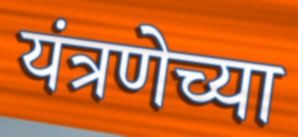
यंत्रणेच्या